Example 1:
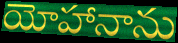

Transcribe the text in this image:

యోహానాను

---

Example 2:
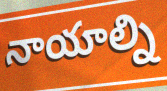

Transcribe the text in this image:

నాయాల్ని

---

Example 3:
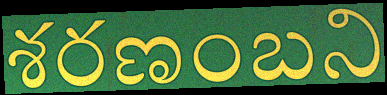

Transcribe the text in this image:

శరణంబని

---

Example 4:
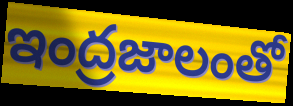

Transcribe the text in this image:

ఇంద్రజాలంతో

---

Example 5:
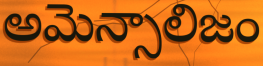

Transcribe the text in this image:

అమెన్సాలిజం